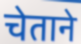
चेताने